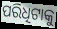
ପରିଧିଟାକୁ